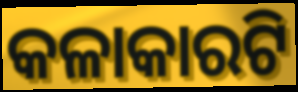
କଳାକାରଟି